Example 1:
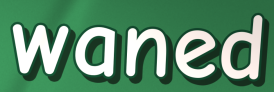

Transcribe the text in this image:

waned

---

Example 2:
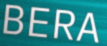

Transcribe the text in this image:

BERA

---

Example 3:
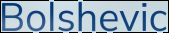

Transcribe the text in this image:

Bolshevic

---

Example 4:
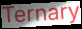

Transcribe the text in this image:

Ternary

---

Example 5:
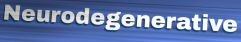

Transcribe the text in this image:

Neurodegenerative